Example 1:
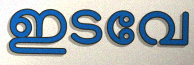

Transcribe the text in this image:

ഇടവേ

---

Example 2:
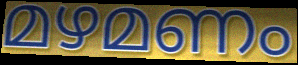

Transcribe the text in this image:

മഴമണം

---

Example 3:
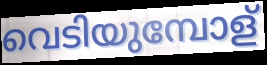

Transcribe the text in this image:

വെടിയുമ്പോള്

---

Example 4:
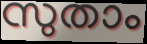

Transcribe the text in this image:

സുതാം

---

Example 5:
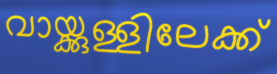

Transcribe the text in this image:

വായ്ക്കുള്ളിലേക്ക്